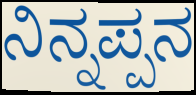
ನಿನ್ನಪ್ಪನ